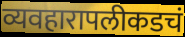
व्यवहारापलीकडचं